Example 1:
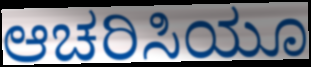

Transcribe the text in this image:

ಆಚರಿಸಿಯೂ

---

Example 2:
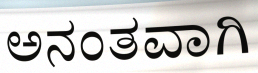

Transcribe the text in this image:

ಅನಂತವಾಗಿ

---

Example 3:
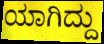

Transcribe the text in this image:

ಯಾಗಿದ್ದು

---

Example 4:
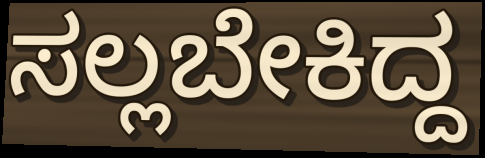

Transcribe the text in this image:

ಸಲ್ಲಬೇಕಿದ್ದ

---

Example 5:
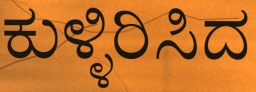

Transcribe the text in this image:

ಕುಳ್ಳಿರಿಸಿದ